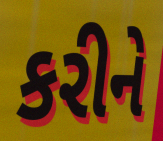
કરીને